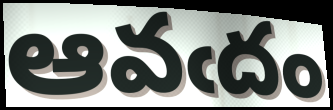
ఆవఁదం